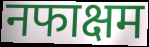
नफाक्षम